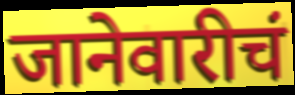
जानेवारीचं